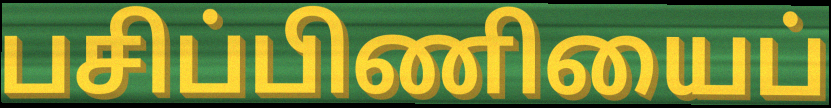
பசிப்பிணியைப்